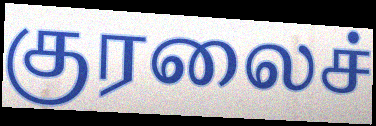
குரலைச்